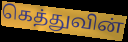
கெத்துவின்